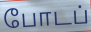
போடப்